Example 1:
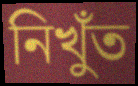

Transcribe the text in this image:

নিখুঁত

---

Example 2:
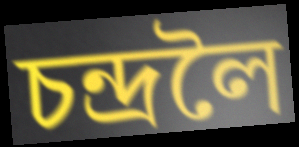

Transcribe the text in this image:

চন্দ্ৰলৈ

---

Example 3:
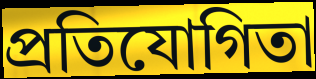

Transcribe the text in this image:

প্ৰতিযোগিতা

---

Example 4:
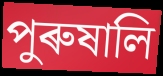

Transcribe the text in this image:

পুৰুষালি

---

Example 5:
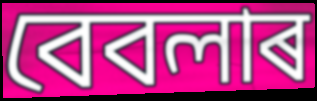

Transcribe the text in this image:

বেবলাৰ